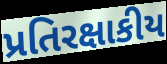
પ્રતિરક્ષાકીય